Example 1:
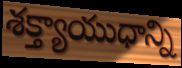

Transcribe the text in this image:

శక్త్యాయుధాన్ని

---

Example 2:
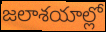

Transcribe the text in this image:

జలాశయాల్లో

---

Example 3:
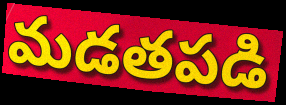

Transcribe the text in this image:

మడతపడి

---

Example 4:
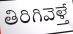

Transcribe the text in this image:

తిరిగివెళ్తే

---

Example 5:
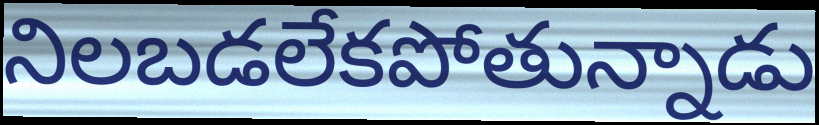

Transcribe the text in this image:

నిలబడలేకపోతున్నాడు